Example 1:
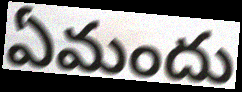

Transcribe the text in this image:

ఏమందు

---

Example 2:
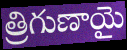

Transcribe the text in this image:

త్రిగుణాయై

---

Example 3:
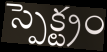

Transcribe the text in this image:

స్పెక్ట్రం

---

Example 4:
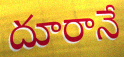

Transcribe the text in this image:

దూరానే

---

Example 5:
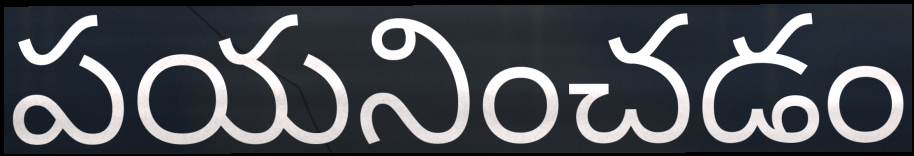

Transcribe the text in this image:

పయనించడం